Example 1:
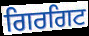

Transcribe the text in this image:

ਗਿਰਗਿਟ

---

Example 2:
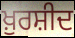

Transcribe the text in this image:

ਖ਼ੁਰਸ਼ੀਦ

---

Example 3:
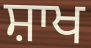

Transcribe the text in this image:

ਸ਼ਾਖ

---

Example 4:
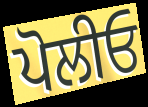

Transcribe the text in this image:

ਪੋਲੀਓ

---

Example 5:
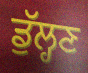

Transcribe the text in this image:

ਡੁੱਲ੍ਹਣ